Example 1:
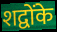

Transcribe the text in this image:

शद्वोंके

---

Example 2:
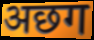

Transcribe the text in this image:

अछग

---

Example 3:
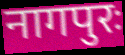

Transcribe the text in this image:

नागपुरः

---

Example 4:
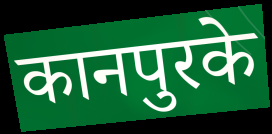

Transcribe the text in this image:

कानपुरके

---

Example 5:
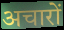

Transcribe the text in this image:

अचारों